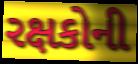
રક્ષકોની